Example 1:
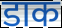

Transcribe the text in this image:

डाक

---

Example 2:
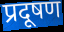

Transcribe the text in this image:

प्रदूषण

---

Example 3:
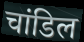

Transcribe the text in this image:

चांडिल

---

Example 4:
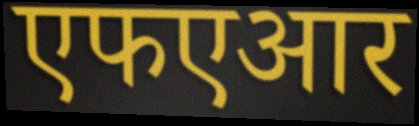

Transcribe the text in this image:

एफएआर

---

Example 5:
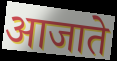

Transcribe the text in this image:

आजाते